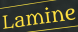
Lamine